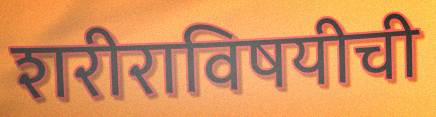
शरीराविषयीची